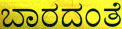
ಬಾರದಂತೆ